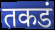
तकडं